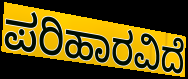
ಪರಿಹಾರವಿದೆ